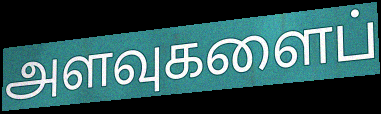
அளவுகளைப்